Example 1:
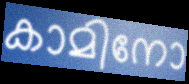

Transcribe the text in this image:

കാമിനോ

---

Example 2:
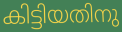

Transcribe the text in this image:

കിട്ടിയതിനു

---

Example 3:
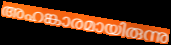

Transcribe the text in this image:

അഹങ്കാരമായിരുന്നു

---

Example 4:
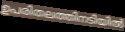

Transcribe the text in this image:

ഉപരിതലത്തിനടിയിൽ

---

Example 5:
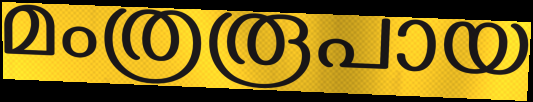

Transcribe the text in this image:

മംത്രരൂപായ